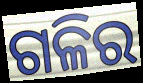
ଗଳିର